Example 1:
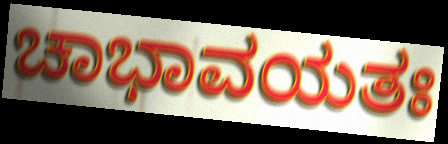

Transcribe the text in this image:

ಚಾಭಾವಯತಃ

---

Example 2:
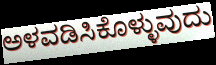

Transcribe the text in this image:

ಅಳವಡಿಸಿಕೊಳ್ಳುವುದು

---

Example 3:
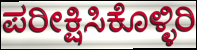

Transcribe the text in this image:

ಪರೀಕ್ಷಿಸಿಕೊಳ್ಳಿರಿ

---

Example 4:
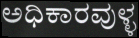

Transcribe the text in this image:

ಅಧಿಕಾರವುಳ್ಳ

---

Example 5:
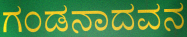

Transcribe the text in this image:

ಗಂಡನಾದವನ